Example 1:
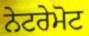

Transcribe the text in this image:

ਨੇਟਰੇਮੋਟ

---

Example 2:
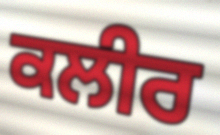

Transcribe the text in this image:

ਕਲੀਰ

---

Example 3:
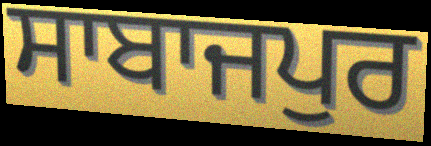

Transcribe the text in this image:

ਸਾਬਾਜਪੁਰ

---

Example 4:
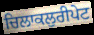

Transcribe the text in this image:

ਚਿਲਾਕਲੁਰੀਪੇਟ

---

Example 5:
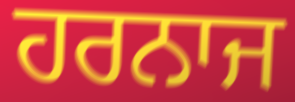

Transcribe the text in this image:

ਹਰਨਾਜ